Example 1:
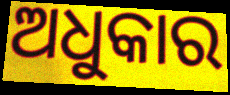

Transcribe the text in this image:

ଅଧୁକାର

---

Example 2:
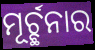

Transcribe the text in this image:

ମୂର୍ଚ୍ଛନାର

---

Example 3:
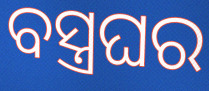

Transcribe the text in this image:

ବସ୍ତ୍ରଘର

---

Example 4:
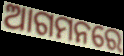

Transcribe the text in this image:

ଆଗମନରେ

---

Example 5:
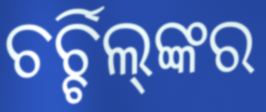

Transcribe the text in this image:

ଚର୍ଚ୍ଚିଲ୍‌ଙ୍କର